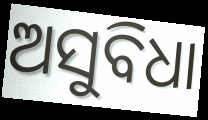
ଅସୁବିଧା